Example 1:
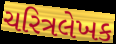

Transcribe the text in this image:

ચરિત્રલેખક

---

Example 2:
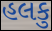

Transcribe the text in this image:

હલકુ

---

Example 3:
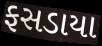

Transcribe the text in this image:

ફસડાયા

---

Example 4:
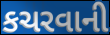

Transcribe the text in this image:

કચરવાની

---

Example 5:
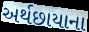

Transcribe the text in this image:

અર્થછાયાના